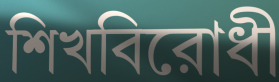
শিখবিরোধী